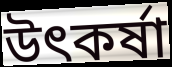
উৎকর্ষা